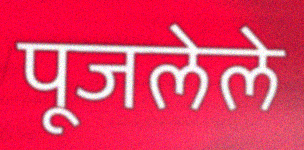
पूजलेले